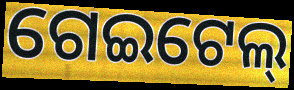
ଗେଇଟେଲ୍